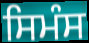
ਸਿਮੰਸ